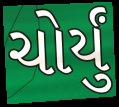
ચોર્યું